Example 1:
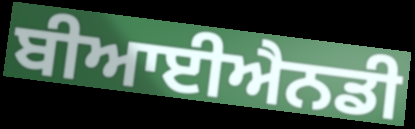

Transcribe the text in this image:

ਬੀਆਈਐਨਡੀ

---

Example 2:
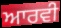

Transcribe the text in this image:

ਆਰਵੀ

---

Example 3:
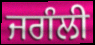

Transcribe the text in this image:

ਜਗੰਲੀ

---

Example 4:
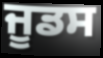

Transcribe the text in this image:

ਜੂਡਸ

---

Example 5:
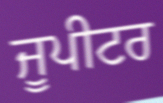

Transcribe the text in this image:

ਜੂਪੀਟਰ